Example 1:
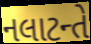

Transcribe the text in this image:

નલાટન્તે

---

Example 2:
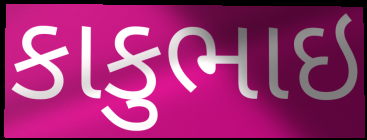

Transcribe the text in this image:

કાકુભાઇ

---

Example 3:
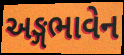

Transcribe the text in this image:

અઙ્ગભાવેન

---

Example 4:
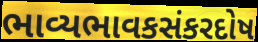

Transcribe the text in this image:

ભાવ્યભાવકસંકરદોષ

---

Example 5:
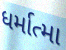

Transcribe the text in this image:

ધર્માત્મા